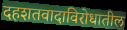
दहशतवादाविरोधातील